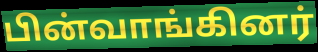
பின்வாங்கினர்